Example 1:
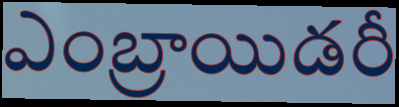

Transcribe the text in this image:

ఎంబ్రాయిడరీ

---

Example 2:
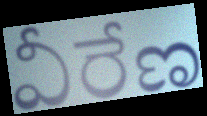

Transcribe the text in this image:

వీరేణ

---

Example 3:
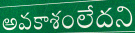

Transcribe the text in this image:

అవకాశంలేదని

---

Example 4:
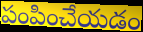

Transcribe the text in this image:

పంపించేయడం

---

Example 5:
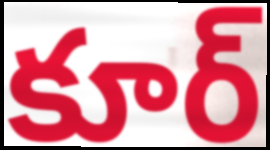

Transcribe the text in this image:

కూర్